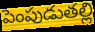
పెంపుడుతల్లి